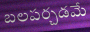
బలపర్చడమే